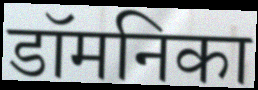
डॉमनिका